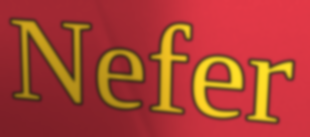
Nefer